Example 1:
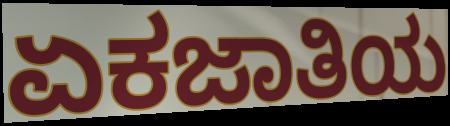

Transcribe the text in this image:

ಏಕಜಾತಿಯ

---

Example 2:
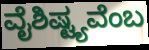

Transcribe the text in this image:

ವೈಶಿಷ್ಟ್ಯವೆಂಬ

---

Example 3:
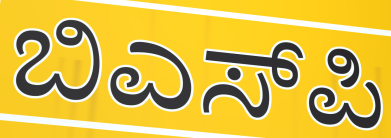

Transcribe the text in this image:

ಬಿಎಸ್‌ಪಿ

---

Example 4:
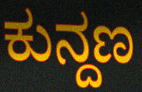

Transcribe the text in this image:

ಕುನ್ದಣ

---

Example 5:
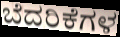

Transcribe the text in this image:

ಬೆದರಿಕೆಗಳ